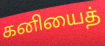
கனியைத்